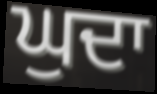
ਘੁਦਾ